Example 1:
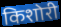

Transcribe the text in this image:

किशोरी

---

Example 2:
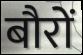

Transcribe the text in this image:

बौरों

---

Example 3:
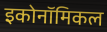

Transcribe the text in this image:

इकोनॉमिकल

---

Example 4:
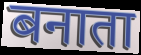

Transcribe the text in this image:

बनाता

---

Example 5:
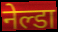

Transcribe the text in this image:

नेल्डा